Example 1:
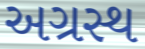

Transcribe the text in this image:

અગ્રસ્થ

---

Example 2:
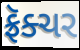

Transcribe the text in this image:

ફ્રૅક્ચર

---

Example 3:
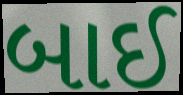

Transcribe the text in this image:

બાઈ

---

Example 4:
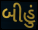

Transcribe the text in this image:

બીહું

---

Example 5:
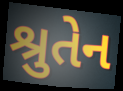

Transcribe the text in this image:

શ્રુતેન